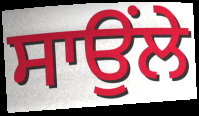
ਸਾਉਂਲੇ